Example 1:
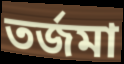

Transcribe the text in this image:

তর্জমা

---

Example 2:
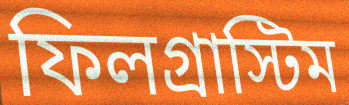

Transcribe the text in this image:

ফিলগ্রাস্টিম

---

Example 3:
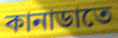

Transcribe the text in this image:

কানাডাতে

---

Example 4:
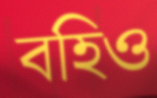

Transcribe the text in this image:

বহিও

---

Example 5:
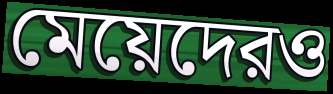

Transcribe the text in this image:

মেয়েদেরও